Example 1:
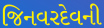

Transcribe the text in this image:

જિનવરદેવની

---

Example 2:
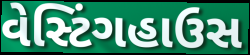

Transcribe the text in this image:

વેસ્ટિંગહાઉસ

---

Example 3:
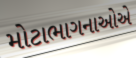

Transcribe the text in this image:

મોટાભાગનાઓએ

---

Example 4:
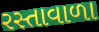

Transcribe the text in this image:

રસ્તાવાળા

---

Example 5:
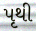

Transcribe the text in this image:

પૃથી